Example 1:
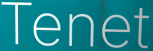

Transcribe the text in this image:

Tenet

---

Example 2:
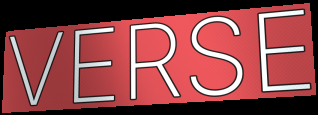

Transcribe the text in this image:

VERSE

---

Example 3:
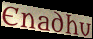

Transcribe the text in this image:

Enadhu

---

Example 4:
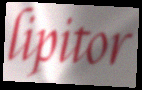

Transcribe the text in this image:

lipitor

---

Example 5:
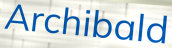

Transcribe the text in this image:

Archibald